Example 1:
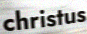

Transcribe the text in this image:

christus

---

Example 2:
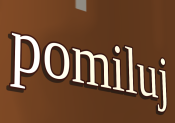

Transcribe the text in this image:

pomiluj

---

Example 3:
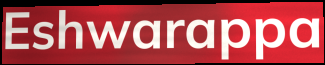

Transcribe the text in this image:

Eshwarappa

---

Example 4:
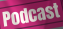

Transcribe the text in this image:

Podcast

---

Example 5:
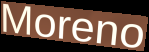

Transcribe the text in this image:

Moreno